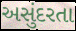
અસુંદરતા